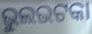
ଭୁଲଭଟକା